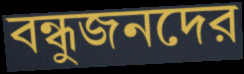
বন্ধুজনদের